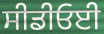
ਸੀਡੀਓਈ